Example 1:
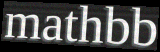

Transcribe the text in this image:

mathbb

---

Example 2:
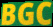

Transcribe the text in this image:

BGC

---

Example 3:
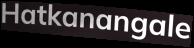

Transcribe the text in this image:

Hatkanangale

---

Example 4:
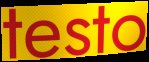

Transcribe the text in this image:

testo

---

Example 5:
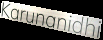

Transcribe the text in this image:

Karunanidhi